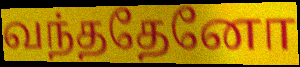
வந்ததேனோ